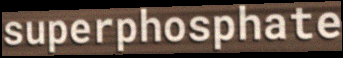
superphosphate